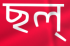
ছল্